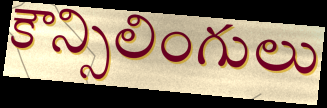
కౌన్సిలింగులు